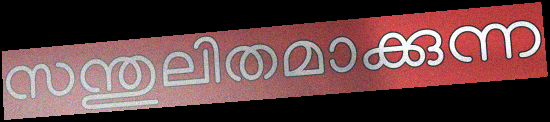
സന്തുലിതമാക്കുന്ന